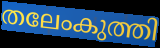
തലേംകുത്തി